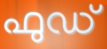
ഫുഡ്